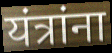
यंत्रांना